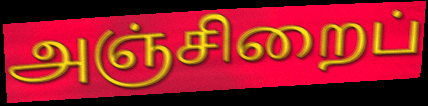
அஞ்சிறைப்